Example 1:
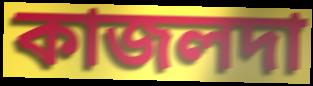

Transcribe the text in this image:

কাজলদা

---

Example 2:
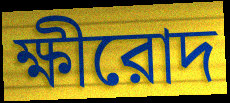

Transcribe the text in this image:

ক্ষীরোদ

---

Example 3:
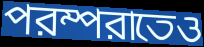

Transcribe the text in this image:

পরম্পরাতেও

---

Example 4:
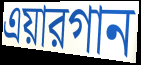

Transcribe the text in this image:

এয়ারগান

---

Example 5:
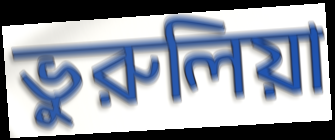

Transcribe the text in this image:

ভুরুলিয়া